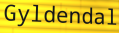
Gyldendal